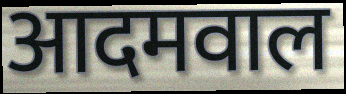
आदमवाल